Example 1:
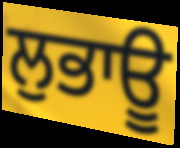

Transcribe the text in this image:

ਲੁਭਾਊ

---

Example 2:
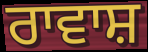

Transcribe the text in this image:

ਰਾਵਾਸ਼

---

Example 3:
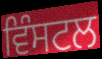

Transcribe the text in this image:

ਵਿੰਸਟਲ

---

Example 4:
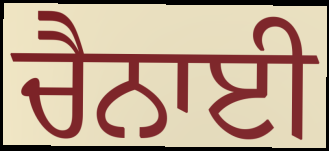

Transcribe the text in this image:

ਚੈਨਾਈ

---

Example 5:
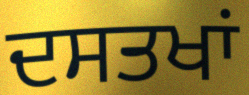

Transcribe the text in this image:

ਦਸਤਖਾਂ